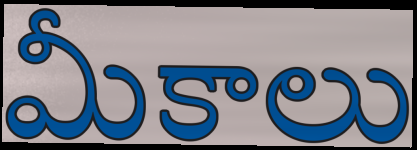
మీకాలు